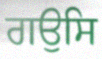
ਗਉਸਿ